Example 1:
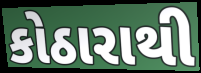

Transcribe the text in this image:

કોઠારાથી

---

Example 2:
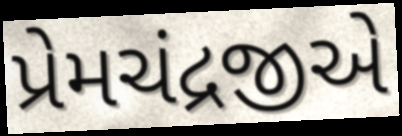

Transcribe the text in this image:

પ્રેમચંદ્રજીએ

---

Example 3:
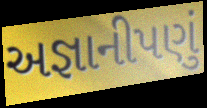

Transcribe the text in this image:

અજ્ઞાનીપણું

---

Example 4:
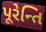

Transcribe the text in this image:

પૂરેન્તિ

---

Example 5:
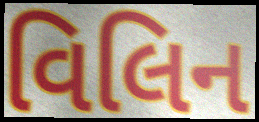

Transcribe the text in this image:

વિલિન